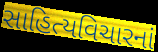
સાહિત્યવિચારનાં